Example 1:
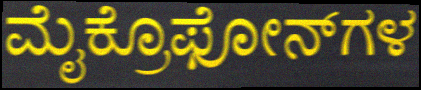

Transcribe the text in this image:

ಮೈಕ್ರೊಫೋನ್‌ಗಳ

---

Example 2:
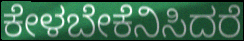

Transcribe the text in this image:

ಕೇಳಬೇಕೆನಿಸಿದರೆ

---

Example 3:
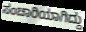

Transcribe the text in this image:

ಸಂಚಾರಿಯಾಗಿದ್ದು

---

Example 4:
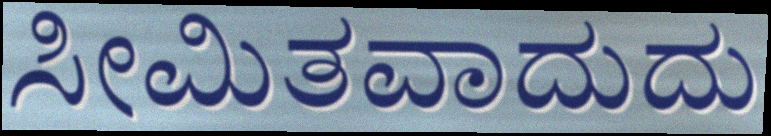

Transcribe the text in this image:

ಸೀಮಿತವಾದುದು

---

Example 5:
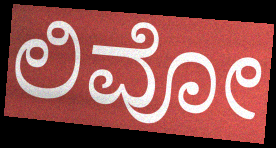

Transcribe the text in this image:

ಲಿವೋ